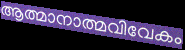
ആത്മാനാത്മവിവേകം